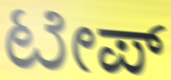
ಟೇಪ್